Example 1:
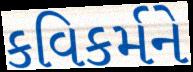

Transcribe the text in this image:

કવિકર્મને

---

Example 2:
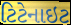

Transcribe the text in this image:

ટિટેનાઇટ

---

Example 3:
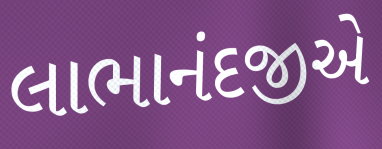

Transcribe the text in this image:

લાભાનંદજીએ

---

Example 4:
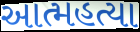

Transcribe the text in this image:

આત્મહત્યા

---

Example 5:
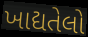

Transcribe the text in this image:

ખાદ્યતેલો